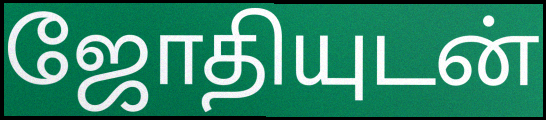
ஜோதியுடன்